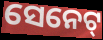
ସେନେଟ୍